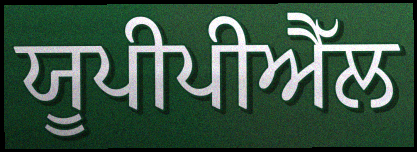
ਯੂਪੀਪੀਐੱਲ